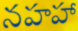
నహహా